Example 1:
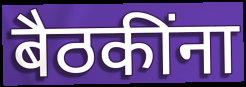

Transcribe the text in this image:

बैठकींना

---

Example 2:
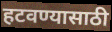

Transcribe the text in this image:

हटवण्यासाठी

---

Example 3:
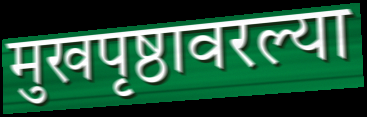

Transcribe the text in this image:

मुखपृष्ठावरल्या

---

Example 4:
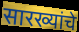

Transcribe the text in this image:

सारख्यांचे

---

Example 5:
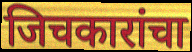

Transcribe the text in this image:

जिचकारांचा